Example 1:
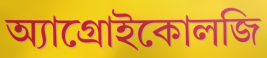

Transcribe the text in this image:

অ্যাগ্রোইকোলজি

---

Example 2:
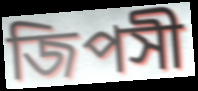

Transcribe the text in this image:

জিপসী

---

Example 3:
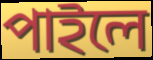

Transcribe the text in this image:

পাইলে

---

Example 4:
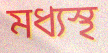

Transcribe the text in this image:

মধ্যস্থ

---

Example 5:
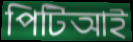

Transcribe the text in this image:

পিটিআই